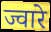
ज्वारे